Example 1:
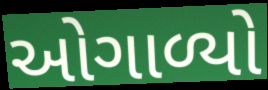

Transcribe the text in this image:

ઓગાળ્યો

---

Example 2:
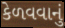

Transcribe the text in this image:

કેળવવાનું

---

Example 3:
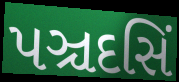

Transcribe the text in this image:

પઞ્ચદસિં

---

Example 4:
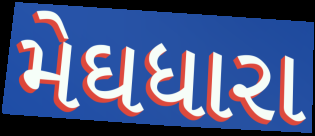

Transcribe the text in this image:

મેઘધારા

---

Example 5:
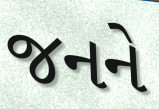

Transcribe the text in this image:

જનને